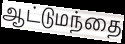
ஆட்டுமந்தை